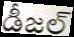
డీజల్